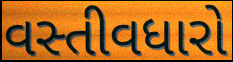
વસ્તીવધારો